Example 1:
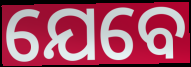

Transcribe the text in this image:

ଯେବେ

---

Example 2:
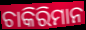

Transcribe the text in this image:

ଚାକିରିମାନ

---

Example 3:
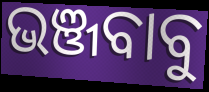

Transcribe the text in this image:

ଭଞ୍ଜବାବୁ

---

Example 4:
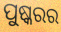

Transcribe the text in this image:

ପୁଷ୍କରର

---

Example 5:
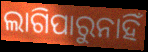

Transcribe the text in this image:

ଲାଗିପାରୁନାହିଁ